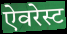
ऐवरेस्ट